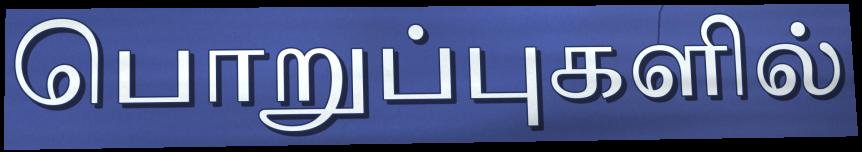
பொறுப்புகளில்